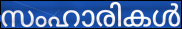
സംഹാരികൾ